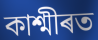
কাশ্মীৰত